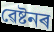
ৱেষ্টনৰ